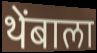
थेंबाला